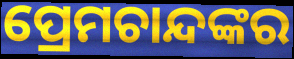
ପ୍ରେମଚାନ୍ଦଙ୍କର